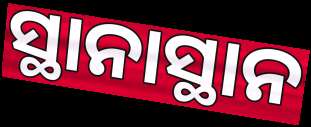
ସ୍ଥାନାସ୍ଥାନ